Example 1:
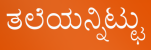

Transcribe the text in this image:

ತಲೆಯನ್ನಿಟ್ಟು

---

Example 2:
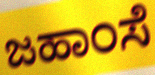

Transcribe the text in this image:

ಜಹಾಂಸೆ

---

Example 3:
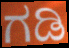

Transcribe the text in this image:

ಗಡಿ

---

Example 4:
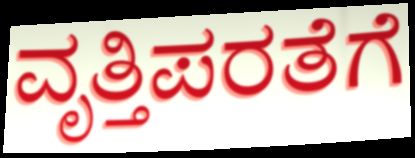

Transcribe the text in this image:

ವೃತ್ತಿಪರತೆಗೆ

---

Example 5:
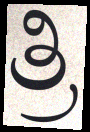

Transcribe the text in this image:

ತ್ರಿ